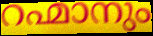
റഹ്മാനും